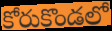
కోరుకొండలో